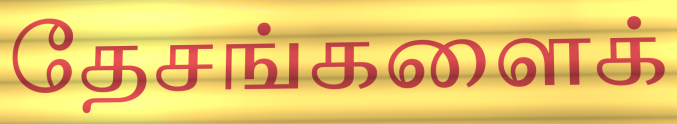
தேசங்களைக்